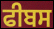
ਫੀਬਸ